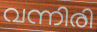
വന്നിരി